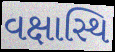
વક્ષાસ્થિ